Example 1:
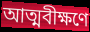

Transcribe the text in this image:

আত্মবীক্ষণে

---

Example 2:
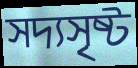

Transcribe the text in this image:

সদ্যসৃষ্ট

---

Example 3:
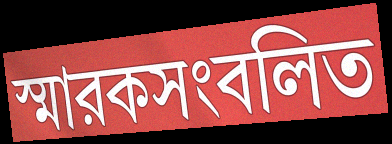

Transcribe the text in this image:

স্মারকসংবলিত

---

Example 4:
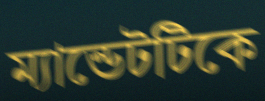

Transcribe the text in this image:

ম্যান্ডেটটিকে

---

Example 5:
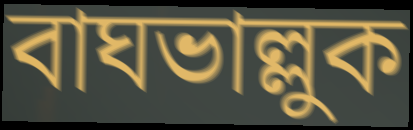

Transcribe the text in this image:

বাঘভাল্লুক